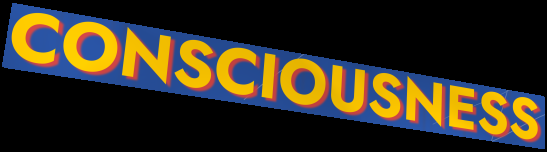
CONSCIOUSNESS